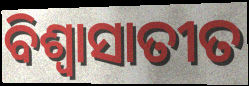
ବିଶ୍ୱାସାତୀତ